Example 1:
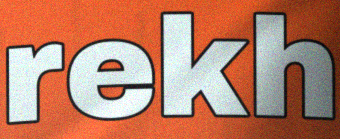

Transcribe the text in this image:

rekh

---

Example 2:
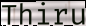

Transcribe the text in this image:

Thiru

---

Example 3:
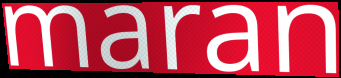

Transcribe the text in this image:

maran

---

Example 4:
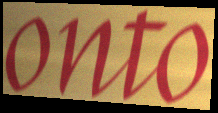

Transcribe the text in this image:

onto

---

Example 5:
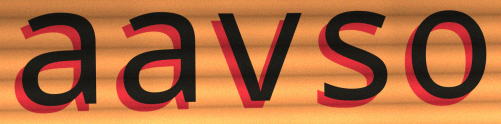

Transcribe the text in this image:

aavso